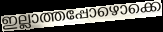
ഇല്ലാത്തപ്പോഴൊക്കെ